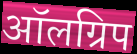
ऑलग्रिप